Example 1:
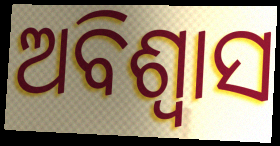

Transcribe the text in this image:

ଅବିଶ୍ବାସ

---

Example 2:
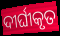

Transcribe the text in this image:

ଦୀର୍ଘୀକୃତ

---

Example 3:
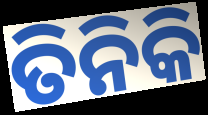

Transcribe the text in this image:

ତିନିକି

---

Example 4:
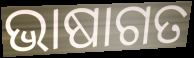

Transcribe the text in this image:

ଭାଷାଗତ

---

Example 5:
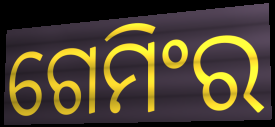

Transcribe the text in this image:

ଗେମିଂର